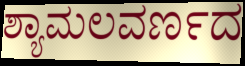
ಶ್ಯಾಮಲವರ್ಣದ